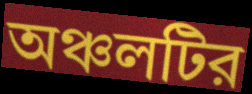
অঞ্চলটির